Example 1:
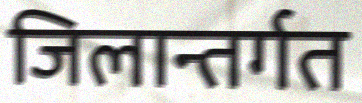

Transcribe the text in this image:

जिलान्तर्गत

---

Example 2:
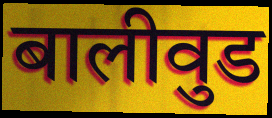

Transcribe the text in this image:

बालीवुड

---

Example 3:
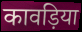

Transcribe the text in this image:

कावड़िया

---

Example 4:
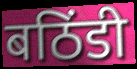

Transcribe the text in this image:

बठिंडी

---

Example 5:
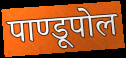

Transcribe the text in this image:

पाण्डूपोल